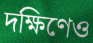
দক্ষিণেও